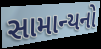
સામાન્યનો